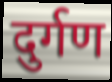
दुर्गण